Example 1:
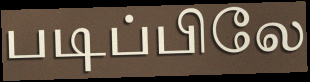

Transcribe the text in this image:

படிப்பிலே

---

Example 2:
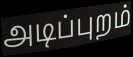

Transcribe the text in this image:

அடிப்புறம்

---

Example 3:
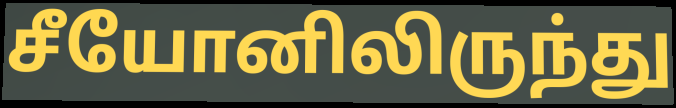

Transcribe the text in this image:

சீயோனிலிருந்து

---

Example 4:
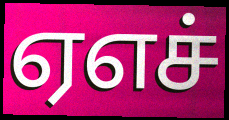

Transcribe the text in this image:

ஏஎச்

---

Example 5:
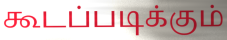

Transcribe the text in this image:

கூடப்படிக்கும்